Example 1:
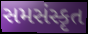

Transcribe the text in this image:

સમસંસ્કૃત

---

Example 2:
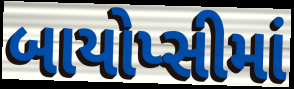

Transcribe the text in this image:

બાયોપ્સીમાં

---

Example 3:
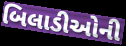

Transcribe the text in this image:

બિલાડીઓની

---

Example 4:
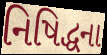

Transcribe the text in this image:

નિષિદ્ધના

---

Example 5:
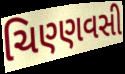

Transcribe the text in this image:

ચિણ્ણવસી